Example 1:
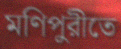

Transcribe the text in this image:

মণিপুরীতে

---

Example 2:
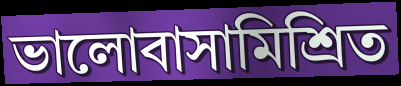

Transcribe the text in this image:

ভালোবাসামিশ্রিত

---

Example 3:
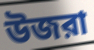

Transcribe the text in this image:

উজরা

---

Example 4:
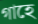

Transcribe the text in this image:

গাহে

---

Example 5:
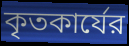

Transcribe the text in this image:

কৃতকার্যের